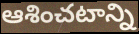
ఆశించటాన్ని